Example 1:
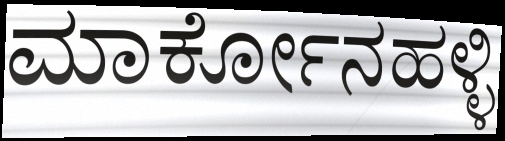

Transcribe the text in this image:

ಮಾರ್ಕೋನಹಳ್ಳಿ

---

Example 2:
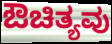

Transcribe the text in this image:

ಔಚಿತ್ಯವು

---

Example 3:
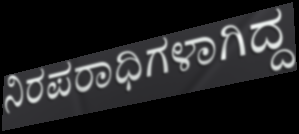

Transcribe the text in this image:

ನಿರಪರಾಧಿಗಳಾಗಿದ್ದ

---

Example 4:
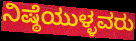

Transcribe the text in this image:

ನಿಷ್ಠೆಯುಳ್ಳವರು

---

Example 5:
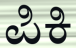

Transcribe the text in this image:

ಪಿಕಿ